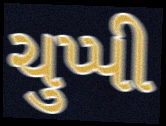
ચુપ્પી